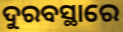
ଦୁରବସ୍ଥାରେ